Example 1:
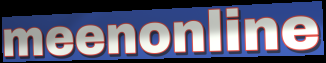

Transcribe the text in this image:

meenonline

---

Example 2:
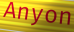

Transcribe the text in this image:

Anyon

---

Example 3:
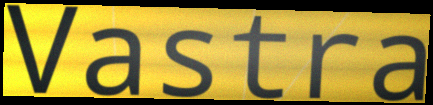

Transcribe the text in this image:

Vastra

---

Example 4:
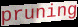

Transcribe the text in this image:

pruning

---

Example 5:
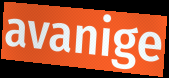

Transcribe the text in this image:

avanige